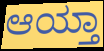
ಆಯ್ತಾ